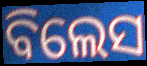
ବିଲେସ